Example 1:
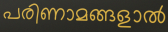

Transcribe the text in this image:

പരിണാമങ്ങളാൽ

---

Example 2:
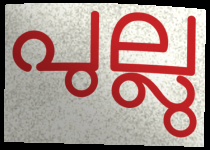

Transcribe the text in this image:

പുല്ലു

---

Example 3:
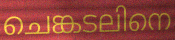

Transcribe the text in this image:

ചെങ്കടലിനെ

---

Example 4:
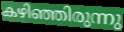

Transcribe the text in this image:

കഴിഞ്ഞിരുന്നു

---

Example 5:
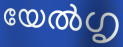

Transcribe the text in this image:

യേൽഗൃ